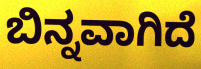
ಬಿನ್ನವಾಗಿದೆ